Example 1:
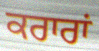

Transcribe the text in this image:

ਕਰਾਰਾਂ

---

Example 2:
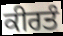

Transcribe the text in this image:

ਕੀਰਤੰ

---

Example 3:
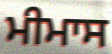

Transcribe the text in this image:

ਮੀਮਾਸ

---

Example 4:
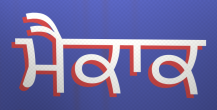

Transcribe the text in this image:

ਮੈਕਾਕ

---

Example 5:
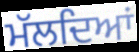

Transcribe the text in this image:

ਮੱਲਦਿਆਂ